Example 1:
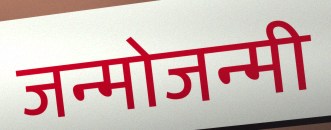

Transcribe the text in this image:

जन्मोजन्मी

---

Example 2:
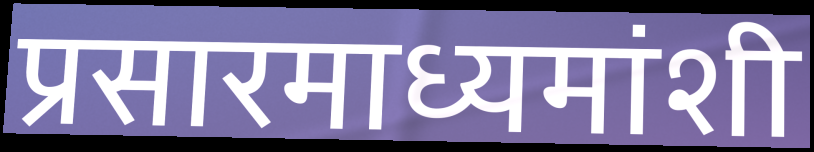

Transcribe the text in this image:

प्रसारमाध्यमांशी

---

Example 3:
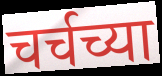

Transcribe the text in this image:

चर्चच्या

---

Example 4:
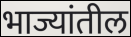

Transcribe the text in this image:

भाज्यांतील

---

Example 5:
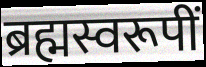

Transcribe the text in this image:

ब्रह्मस्वरूपीं